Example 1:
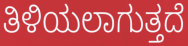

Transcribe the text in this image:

ತಿಳಿಯಲಾಗುತ್ತದೆ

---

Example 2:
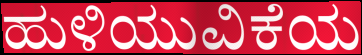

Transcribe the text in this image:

ಹುಳಿಯುವಿಕೆಯ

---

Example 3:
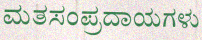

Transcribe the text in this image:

ಮತಸಂಪ್ರದಾಯಗಳು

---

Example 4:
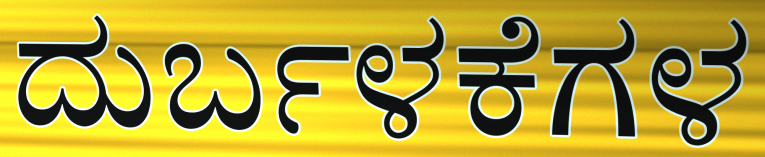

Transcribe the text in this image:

ದುರ್ಬಳಕೆಗಳ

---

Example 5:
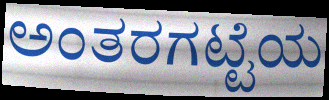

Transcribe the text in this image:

ಅಂತರಗಟ್ಟೆಯ